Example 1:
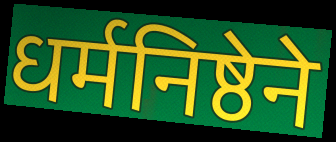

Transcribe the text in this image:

धर्मनिष्ठेने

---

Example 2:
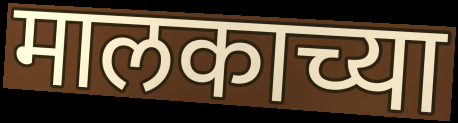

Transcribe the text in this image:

मालकाच्या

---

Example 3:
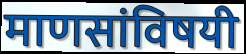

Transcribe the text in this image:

माणसांविषयी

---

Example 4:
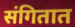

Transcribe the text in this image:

संगितात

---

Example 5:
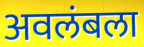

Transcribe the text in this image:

अवलंबला